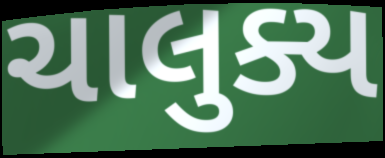
ચાલુક્ય